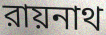
রায়নাথ